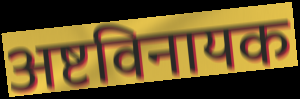
अष्टविनायक